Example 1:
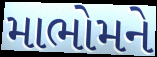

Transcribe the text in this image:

માભોમને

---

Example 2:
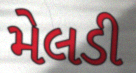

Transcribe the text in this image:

મેલડી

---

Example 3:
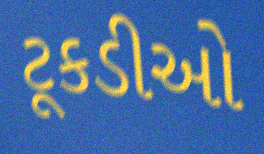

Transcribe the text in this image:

ટૂકડીઓ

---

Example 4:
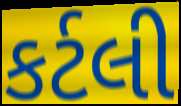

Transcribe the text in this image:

કર્ટલી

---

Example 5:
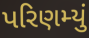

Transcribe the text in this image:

પરિણમ્યું